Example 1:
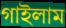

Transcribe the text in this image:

গাইলাম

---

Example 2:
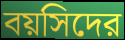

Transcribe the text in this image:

বয়সিদের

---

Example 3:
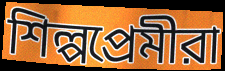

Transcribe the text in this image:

শিল্পপ্রেমীরা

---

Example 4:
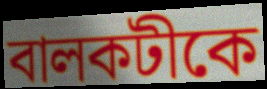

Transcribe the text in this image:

বালকটীকে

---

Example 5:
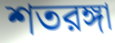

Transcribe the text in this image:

শতরঙ্গা